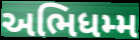
અભિધમ્મ